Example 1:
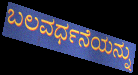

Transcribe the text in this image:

ಬಲವರ್ಧನೆಯನ್ನು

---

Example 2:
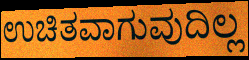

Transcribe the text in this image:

ಉಚಿತವಾಗುವುದಿಲ್ಲ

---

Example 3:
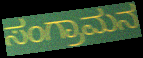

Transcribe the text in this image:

ಸಂಗ್ರಾಮನ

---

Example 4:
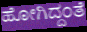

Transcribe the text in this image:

ಹೋಗಿದ್ದಂತೆ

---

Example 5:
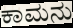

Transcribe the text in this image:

ಕಾಮನು